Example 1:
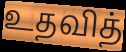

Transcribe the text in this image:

உதவித்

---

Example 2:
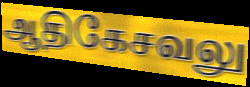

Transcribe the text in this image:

ஆதிகேசவலு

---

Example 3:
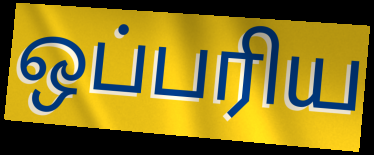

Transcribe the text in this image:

ஒப்பரிய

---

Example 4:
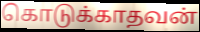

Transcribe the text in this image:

கொடுக்காதவன்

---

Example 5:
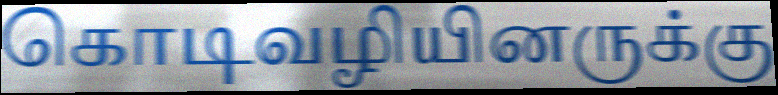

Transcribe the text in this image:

கொடிவழியினருக்கு